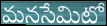
మనసేమిటో